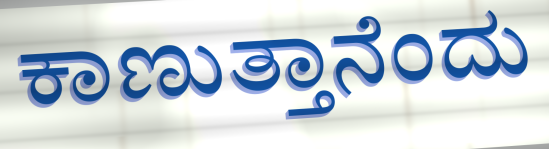
ಕಾಣುತ್ತಾನೆಂದು